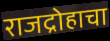
राजद्रोहाचा